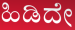
ಹಿಡಿದೇ